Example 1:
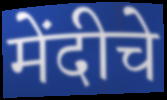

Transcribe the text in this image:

मेंदीचे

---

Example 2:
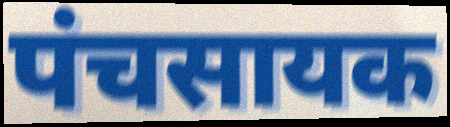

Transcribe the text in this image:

पंचसायक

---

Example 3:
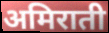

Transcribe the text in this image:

अमिराती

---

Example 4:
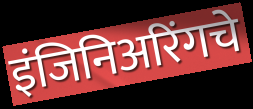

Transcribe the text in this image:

इंजिनिअरिंगचे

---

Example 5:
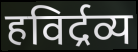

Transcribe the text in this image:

हविर्द्रव्य